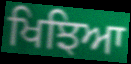
ਖਿਝਿਆ